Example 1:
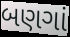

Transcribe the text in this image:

બણગાં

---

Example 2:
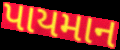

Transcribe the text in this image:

પાયમાન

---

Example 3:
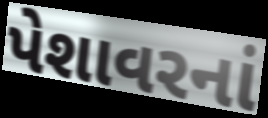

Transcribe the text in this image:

પેશાવરનાં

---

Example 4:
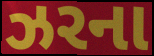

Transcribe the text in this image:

ઝરના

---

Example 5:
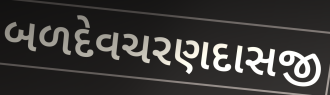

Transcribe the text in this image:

બળદેવચરણદાસજી